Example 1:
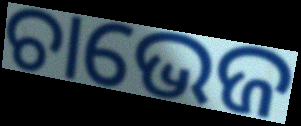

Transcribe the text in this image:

ଚାଭେଜ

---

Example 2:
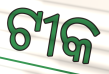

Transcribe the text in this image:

ଟୀକ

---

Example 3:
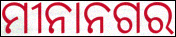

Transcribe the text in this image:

ମୀନାନଗର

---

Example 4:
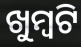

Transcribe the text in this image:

ଖୁମ୍ବଟି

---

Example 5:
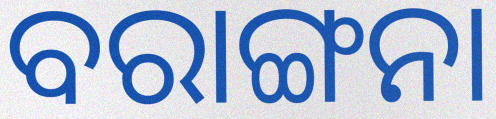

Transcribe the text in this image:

ବରାଙ୍ଗନା